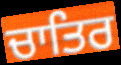
ਚਾਤਿਰ